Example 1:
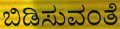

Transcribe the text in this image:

ಬಿಡಿಸುವಂತೆ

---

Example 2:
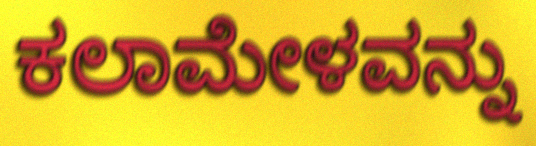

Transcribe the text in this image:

ಕಲಾಮೇಳವನ್ನು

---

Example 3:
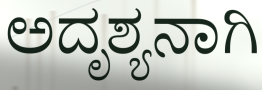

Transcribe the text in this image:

ಅದೃಶ್ಯನಾಗಿ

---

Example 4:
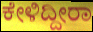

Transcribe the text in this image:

ಕೇಳಿದ್ದೀರಾ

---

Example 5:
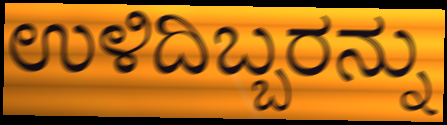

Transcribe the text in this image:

ಉಳಿದಿಬ್ಬರನ್ನು